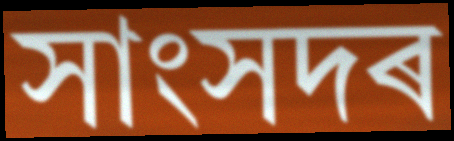
সাংসদৰ